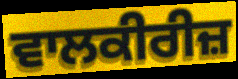
ਵਾਲਕੀਰੀਜ਼